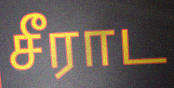
சீராட